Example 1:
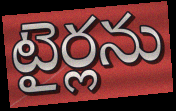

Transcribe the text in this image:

టైర్లను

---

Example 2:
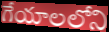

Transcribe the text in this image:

గేయాలలోని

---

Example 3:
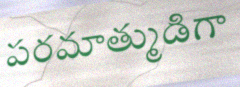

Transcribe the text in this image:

పరమాత్ముడిగా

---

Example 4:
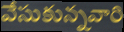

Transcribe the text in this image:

వేసుకున్నవారి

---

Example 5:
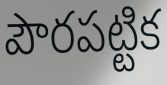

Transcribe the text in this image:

పౌరపట్టిక